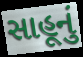
સાહૂનું